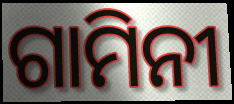
ଗାମିନୀ